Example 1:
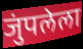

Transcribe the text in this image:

जुंपलेला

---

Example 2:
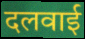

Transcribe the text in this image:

दलवाई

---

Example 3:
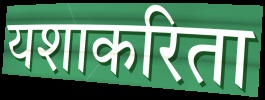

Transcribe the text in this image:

यशाकरिता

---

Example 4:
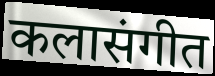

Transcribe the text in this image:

कलासंगीत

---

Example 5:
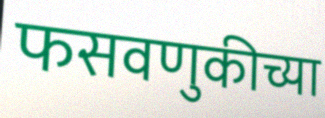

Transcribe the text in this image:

फसवणुकीच्या